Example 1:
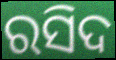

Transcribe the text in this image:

ରସିଦ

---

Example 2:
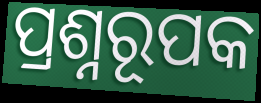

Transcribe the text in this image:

ପ୍ରଶ୍ନରୂପକ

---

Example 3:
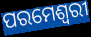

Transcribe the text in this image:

ପରମେଶ୍ୱରୀ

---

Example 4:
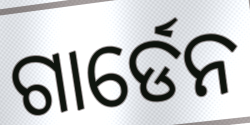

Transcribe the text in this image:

ଗାର୍ଡେନ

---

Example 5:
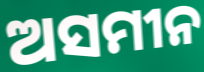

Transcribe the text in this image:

ଅସମୀନ